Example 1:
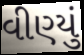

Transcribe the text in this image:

વીણ્યું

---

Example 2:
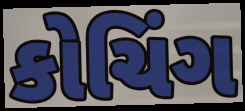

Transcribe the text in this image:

કોચિંગ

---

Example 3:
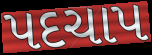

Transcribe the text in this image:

પદચાપ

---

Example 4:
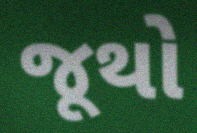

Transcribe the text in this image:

જૂથો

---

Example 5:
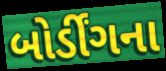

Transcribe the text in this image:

બોર્ડીંગના